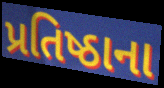
પ્રતિષ્ઠાના